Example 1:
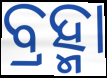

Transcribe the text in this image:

ବ୍ରହ୍ମା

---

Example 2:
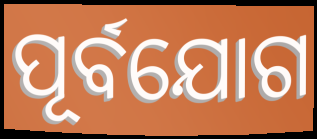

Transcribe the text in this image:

ପୂର୍ବଯୋଗ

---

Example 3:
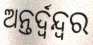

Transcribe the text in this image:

ଅନ୍ତର୍ଦ୍ୱନ୍ଦ୍ୱର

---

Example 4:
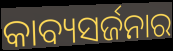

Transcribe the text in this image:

କାବ୍ୟସର୍ଜନାର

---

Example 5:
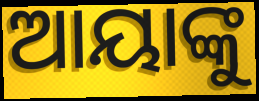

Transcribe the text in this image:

ଆୟାଙ୍କୁ